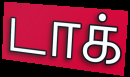
டாக்